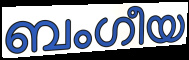
ബംഗീയ